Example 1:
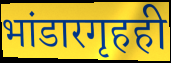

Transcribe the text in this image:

भांडारगृहही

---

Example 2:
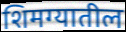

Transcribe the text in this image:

शिमग्यातील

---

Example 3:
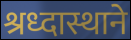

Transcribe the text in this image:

श्रध्दास्थाने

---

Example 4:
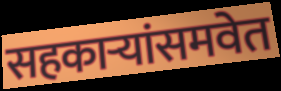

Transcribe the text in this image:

सहकाऱ्यांसमवेत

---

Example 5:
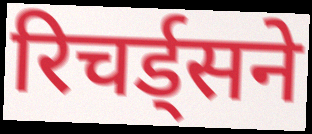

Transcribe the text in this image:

रिचर्ड्सने